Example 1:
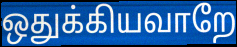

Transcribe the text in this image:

ஒதுக்கியவாறே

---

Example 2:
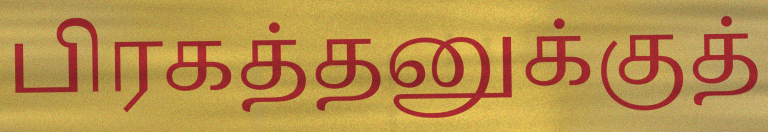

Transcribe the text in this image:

பிரகத்தனுக்குத்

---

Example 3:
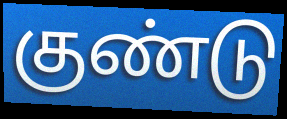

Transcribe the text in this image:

குண்டு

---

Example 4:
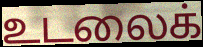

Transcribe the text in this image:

உடலைக்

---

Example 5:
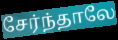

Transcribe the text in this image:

சேர்ந்தாலே